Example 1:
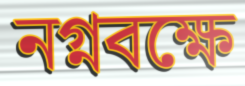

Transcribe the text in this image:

নগ্নবক্ষে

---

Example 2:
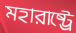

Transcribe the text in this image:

মহারাষ্ট্রে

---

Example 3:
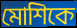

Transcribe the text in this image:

মোশিকে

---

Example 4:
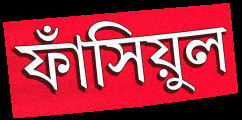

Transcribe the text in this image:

ফাঁসিয়ুল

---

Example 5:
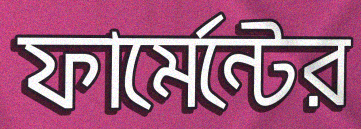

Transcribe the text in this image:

ফার্মেন্টের